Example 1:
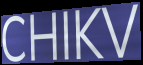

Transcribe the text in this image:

CHIKV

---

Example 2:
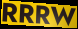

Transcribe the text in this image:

RRRW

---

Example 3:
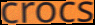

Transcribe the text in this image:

crocs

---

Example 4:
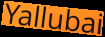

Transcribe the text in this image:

Yallubai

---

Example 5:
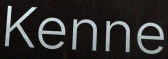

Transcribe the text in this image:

Kenne